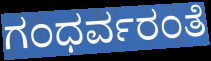
ಗಂಧರ್ವರಂತೆ